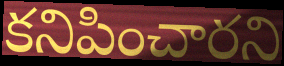
కనిపించారని